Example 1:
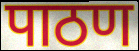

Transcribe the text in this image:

पाठण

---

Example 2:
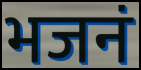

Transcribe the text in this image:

भजनं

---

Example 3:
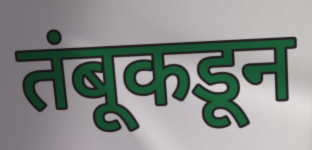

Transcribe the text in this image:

तंबूकडून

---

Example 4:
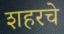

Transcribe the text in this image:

शहरचे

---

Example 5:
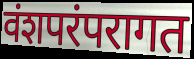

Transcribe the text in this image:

वंशपरंपरागत